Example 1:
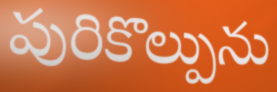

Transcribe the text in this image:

పురికొల్పును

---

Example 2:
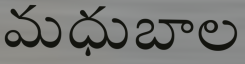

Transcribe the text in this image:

మధుబాల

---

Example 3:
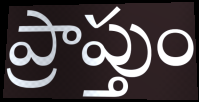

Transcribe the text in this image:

ప్రాప్తుం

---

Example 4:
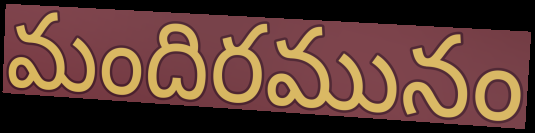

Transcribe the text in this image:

మందిరమునం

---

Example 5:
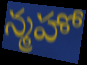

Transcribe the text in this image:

న్మహో